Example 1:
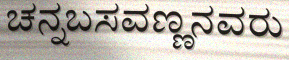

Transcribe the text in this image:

ಚನ್ನಬಸವಣ್ಣನವರು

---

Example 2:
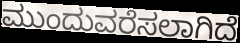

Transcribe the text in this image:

ಮುಂದುವರೆಸಲಾಗಿದೆ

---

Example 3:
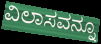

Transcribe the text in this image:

ವಿಲಾಸವನ್ನೂ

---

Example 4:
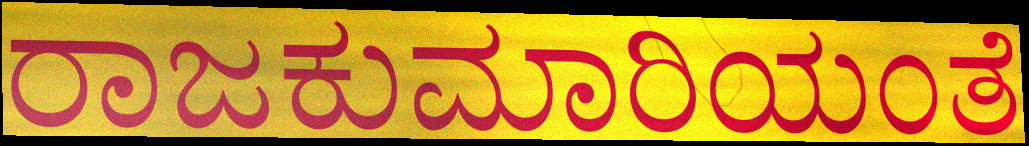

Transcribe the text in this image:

ರಾಜಕುಮಾರಿಯಂತೆ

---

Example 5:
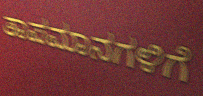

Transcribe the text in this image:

ತಾಪಮಾನಗಳಿಗೆ